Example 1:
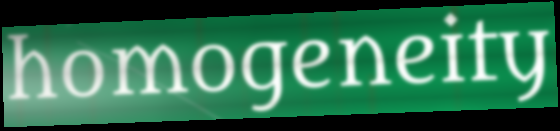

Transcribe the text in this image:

homogeneity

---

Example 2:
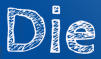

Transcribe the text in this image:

Die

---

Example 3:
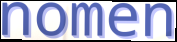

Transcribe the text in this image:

nomen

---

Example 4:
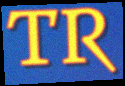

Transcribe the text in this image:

TR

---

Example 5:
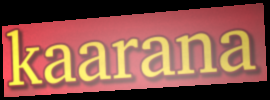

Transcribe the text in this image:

kaarana